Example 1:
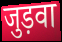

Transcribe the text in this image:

जुड़वा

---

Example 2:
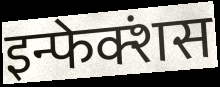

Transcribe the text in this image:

इन्फेक्शंस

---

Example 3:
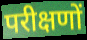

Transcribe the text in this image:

परीक्षणों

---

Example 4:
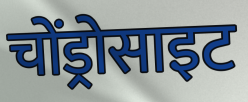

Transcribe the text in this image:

चोंड्रोसाइट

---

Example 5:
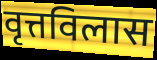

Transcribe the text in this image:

वृत्तविलास